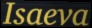
Isaeva